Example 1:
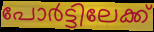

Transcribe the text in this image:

പോർട്ടിലേക്ക്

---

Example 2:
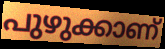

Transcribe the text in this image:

പുഴുക്കാണ്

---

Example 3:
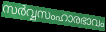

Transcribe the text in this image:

സർവ്വസംഹാരഭാവം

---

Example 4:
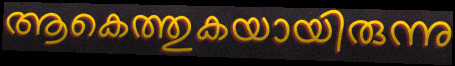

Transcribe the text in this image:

ആകെത്തുകയായിരുന്നു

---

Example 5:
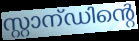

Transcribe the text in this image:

സ്റ്റാന്ഡിന്റെ